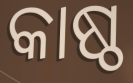
କାଷ୍ଠ